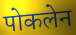
पोकलेन